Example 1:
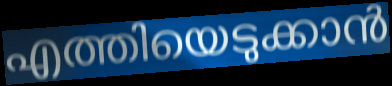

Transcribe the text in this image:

എത്തിയെടുക്കാൻ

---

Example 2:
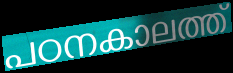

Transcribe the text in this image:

പഠനകാലത്ത്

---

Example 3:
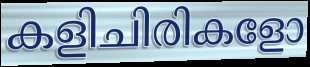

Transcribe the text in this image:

കളിചിരികളോ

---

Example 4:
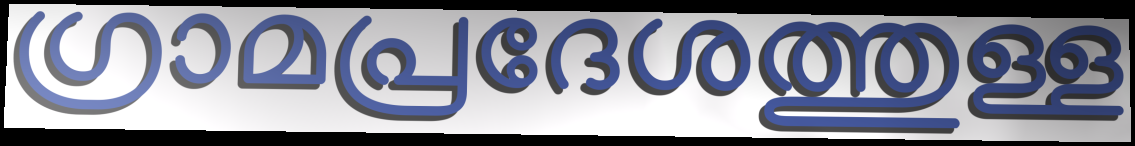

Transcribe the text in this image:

ഗ്രാമപ്രദേശത്തുള്ള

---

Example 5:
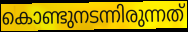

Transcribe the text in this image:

കൊണ്ടുനടന്നിരുന്നത്